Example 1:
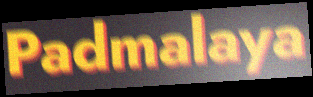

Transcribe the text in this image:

Padmalaya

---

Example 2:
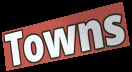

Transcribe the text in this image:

Towns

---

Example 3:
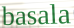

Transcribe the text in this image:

basala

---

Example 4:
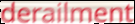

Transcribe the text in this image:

derailment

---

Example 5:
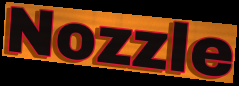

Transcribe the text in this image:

Nozzle